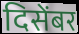
दिसेंबर